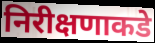
निरीक्षणाकडे